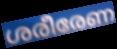
ശരീരേണ